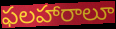
ఫలహారాలూ